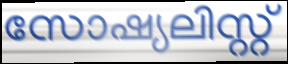
സോഷ്യലിസ്റ്റ്